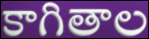
కాగితాల